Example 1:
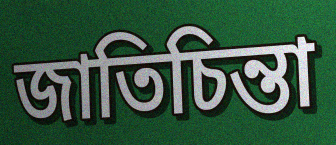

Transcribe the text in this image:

জাতিচিন্তা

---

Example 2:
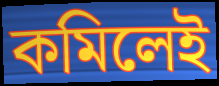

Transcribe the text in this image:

কমিলেই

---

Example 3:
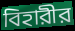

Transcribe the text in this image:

বিহারীর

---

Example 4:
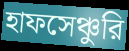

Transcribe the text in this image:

হাফসেঞ্চুরি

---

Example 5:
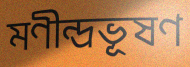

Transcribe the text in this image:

মণীন্দ্রভূষণ